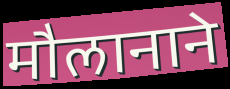
मौलानाने